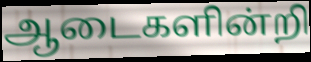
ஆடைகளின்றி